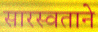
सारस्वताने